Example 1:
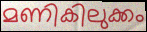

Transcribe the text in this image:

മണികിലുക്കം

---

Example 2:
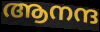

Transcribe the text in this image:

ആനന്ദ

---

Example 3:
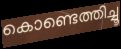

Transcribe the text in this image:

കൊണ്ടെത്തിച്ചൂ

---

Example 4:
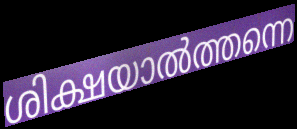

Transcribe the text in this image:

ശിക്ഷയാൽത്തന്നെ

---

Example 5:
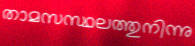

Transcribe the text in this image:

താമസസ്ഥലത്തുനിന്നു